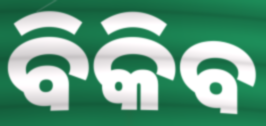
ବିକିବ